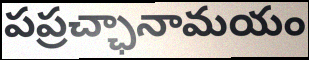
పప్రచ్ఛానామయం